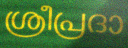
ശ്രീപ്രദാ